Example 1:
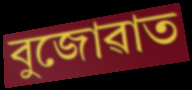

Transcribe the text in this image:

বুজোৱাত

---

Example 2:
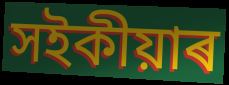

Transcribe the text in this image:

সইকীয়াৰ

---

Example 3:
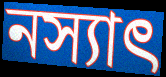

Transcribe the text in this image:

নস্যাৎ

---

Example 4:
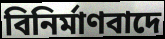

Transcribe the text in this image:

বিনিৰ্মাণবাদে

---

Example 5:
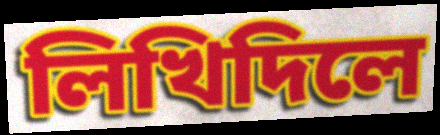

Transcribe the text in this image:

লিখিদিলে